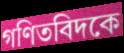
গণিতবিদকে